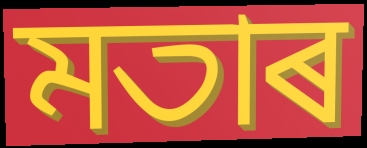
মতাৰ